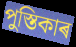
পুস্তিকাৰ